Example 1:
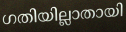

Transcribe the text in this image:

ഗതിയില്ലാതായി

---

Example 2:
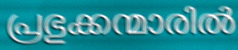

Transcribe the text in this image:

പ്രഭുക്കന്മാരിൽ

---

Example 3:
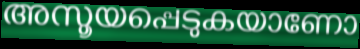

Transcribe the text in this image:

അസൂയപ്പെടുകയാണോ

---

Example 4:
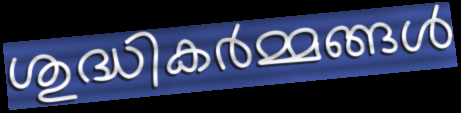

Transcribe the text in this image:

ശുദ്ധികർമ്മങ്ങൾ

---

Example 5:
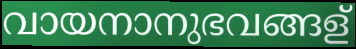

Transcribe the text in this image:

വായനാനുഭവങ്ങള്